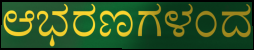
ಆಭರಣಗಳಂದ